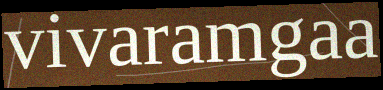
vivaramgaa